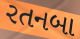
રતનબા